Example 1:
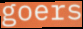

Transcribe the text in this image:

goers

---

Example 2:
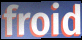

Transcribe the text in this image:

froid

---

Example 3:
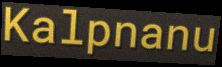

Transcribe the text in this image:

Kalpnanu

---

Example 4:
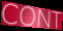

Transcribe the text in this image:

CONT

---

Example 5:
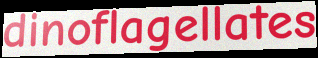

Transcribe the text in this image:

dinoflagellates